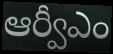
ఆర్వీఎం